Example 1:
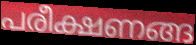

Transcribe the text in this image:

പരീക്ഷണങ്ങ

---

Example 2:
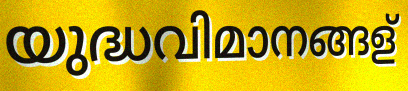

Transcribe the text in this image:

യുദ്ധവിമാനങ്ങള്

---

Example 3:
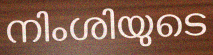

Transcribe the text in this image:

നിംശിയുടെ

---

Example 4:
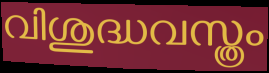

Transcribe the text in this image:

വിശുദ്ധവസ്ത്രം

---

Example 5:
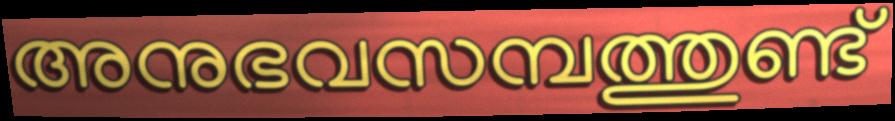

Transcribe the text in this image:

അനുഭവസമ്പത്തുണ്ട്